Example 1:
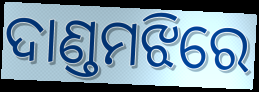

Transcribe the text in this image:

ଦାଣ୍ଡମଝିରେ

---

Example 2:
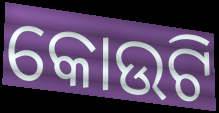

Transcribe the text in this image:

କୋଉଟି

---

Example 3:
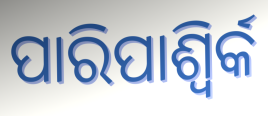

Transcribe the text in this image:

ପାରିପାଶ୍ୱିର୍କ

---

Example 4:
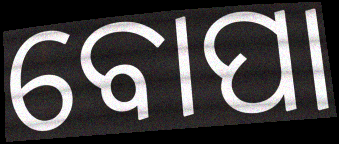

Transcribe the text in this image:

ବୋପା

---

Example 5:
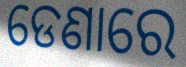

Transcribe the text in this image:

ଡେଣାରେ